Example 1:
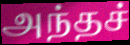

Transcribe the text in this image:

அந்தச்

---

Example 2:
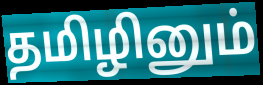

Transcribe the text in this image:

தமிழினும்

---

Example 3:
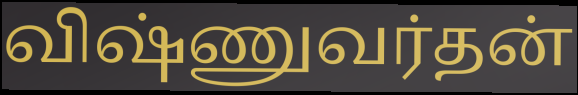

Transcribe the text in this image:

விஷ்ணுவர்தன்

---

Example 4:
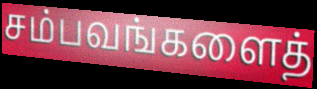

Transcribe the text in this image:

சம்பவங்களைத்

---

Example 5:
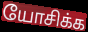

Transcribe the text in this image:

யோசிக்க